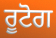
ਰੂਟੋਗ